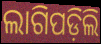
ଲାଗିପଡ଼ିଲି